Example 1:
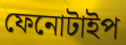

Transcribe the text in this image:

ফেনোটাইপ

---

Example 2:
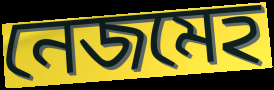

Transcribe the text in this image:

নেজমেহ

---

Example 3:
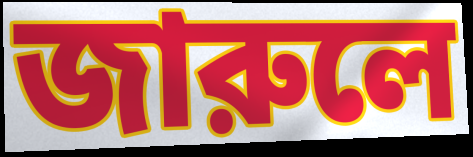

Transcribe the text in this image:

জারুলে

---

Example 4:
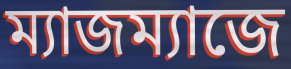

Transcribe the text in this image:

ম্যাজম্যাজে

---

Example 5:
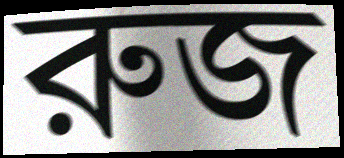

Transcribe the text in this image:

রুজ